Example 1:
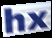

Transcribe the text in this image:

hx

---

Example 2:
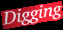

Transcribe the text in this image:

Digging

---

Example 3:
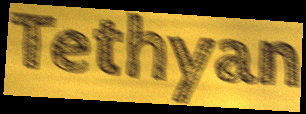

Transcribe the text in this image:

Tethyan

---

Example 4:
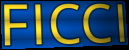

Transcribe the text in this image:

FICCI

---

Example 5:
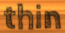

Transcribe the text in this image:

thin